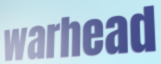
warhead